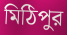
মিঠিপুর